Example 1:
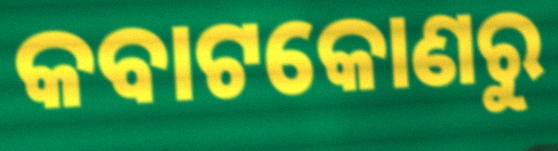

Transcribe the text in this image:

କବାଟକୋଣରୁ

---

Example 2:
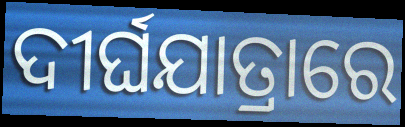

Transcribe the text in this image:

ଦୀର୍ଘଯାତ୍ରାରେ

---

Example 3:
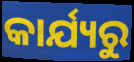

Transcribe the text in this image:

କାର୍ଯ୍ୟରୁ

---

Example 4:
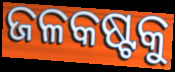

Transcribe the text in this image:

ଜଳକଷ୍ଟକୁ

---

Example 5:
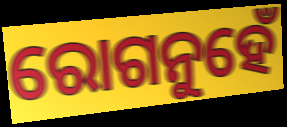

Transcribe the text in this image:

ରୋଗନୁହେଁ